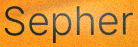
Sepher